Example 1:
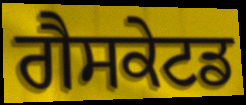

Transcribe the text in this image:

ਗੈਸਕੇਟਡ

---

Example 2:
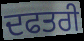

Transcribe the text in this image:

ਦਫਤਰੀ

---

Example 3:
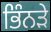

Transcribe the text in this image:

ਭਿੰਨੜੇ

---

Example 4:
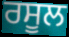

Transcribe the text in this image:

ਰਸੂਲ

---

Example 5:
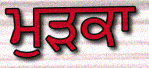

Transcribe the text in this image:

ਮੁੜਕਾ